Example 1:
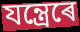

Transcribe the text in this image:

যন্ত্ৰেৰে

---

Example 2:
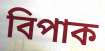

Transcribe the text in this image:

বিপাক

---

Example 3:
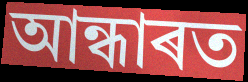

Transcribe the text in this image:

আন্ধাৰত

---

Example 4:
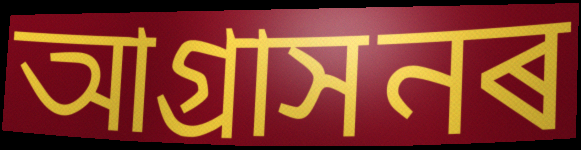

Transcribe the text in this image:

আগ্ৰাসনৰ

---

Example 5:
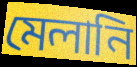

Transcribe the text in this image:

মেলানি